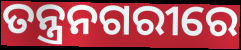
ତନ୍ତ୍ରନଗରୀରେ